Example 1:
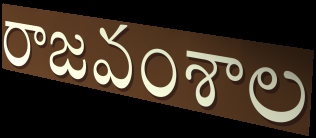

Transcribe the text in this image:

రాజవంశాల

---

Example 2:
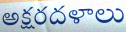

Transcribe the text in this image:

అక్షరదళాలు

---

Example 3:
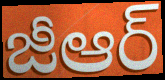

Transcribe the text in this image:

జీఆర్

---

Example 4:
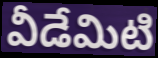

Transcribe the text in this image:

వీడేమిటి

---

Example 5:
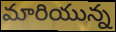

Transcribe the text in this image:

మారియున్న